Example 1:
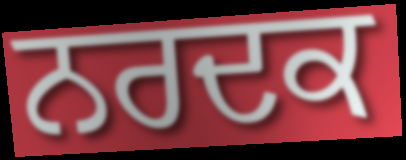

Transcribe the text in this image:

ਨਰਦਕ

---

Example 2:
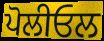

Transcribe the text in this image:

ਪੋਲੀਓਲ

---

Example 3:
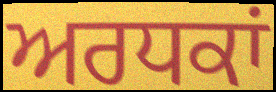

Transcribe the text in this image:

ਅਰਧਕਾਂ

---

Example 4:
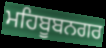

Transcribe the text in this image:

ਮਹਿਬੂਬਨਗਰ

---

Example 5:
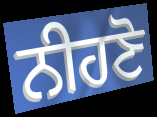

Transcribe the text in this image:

ਨੀਹਣੋ